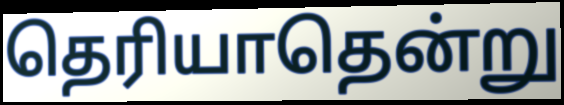
தெரியாதென்று